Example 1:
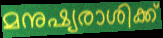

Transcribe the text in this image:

മനുഷ്യരാശിക്ക്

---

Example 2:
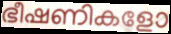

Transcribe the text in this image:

ഭീഷണികളോ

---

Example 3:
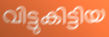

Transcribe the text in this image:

വിട്ടുകിട്ടിയ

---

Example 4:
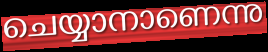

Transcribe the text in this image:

ചെയ്യാനാണെന്നു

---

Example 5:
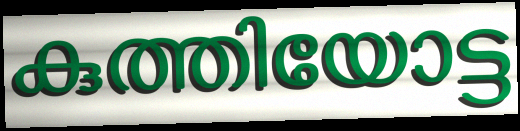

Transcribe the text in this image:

കുത്തിയോട്ട